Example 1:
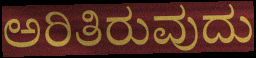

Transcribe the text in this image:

ಅರಿತಿರುವುದು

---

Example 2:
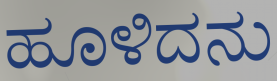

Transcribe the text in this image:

ಹೂಳಿದನು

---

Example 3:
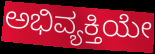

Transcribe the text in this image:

ಅಭಿವ್ಯಕ್ತಿಯೇ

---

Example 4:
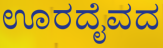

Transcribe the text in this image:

ಊರದೈವದ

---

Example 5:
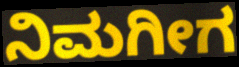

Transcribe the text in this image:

ನಿಮಗೀಗ